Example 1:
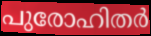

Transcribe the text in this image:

പുരോഹിതർ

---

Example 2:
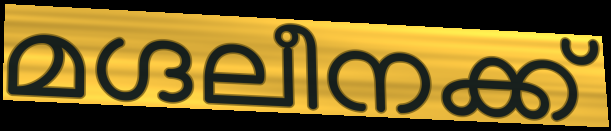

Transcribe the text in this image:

മഗ്ദലീനക്ക്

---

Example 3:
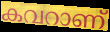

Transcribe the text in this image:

കവറാണ്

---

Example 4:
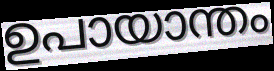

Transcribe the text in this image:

ഉപായാന്തം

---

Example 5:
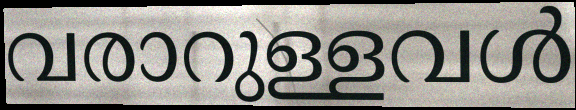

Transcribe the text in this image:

വരാറുള്ളവൾ